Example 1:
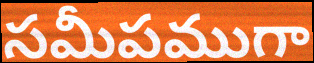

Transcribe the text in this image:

సమీపముగా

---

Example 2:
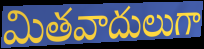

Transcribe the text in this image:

మితవాదులుగా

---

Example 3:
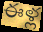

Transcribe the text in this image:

ఈళ్ల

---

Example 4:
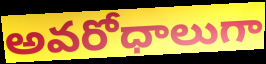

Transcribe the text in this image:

అవరోధాలుగా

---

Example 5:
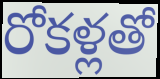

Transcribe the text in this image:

రోకళ్లతో